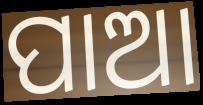
ପାଆ